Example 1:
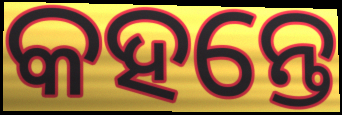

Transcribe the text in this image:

କହନ୍ତେ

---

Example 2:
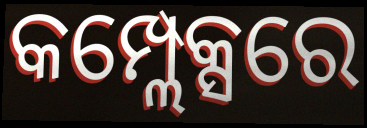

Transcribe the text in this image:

କମ୍ପ୍ଲେକ୍ସରେ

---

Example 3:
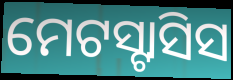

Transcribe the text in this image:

ମେଟସ୍ଟାସିସ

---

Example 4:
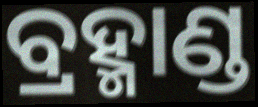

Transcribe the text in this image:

ବ୍ରହ୍ମାଣ୍ଡ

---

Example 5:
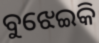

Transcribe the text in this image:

ବୁଝେଇକି